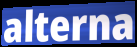
alterna